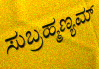
ಸುಬ್ರಹ್ಮಣ್ಯಮ್